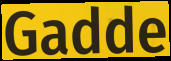
Gadde